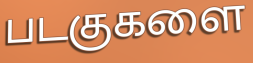
படகுகளை